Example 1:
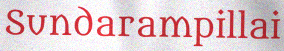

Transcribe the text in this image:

Sundarampillai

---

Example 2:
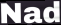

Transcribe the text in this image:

Nad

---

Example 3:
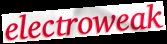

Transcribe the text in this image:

electroweak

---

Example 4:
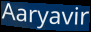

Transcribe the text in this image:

Aaryavir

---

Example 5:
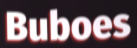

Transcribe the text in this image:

Buboes